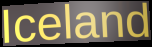
Iceland